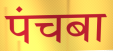
पंचबा